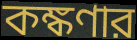
কঙ্কণার